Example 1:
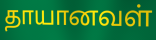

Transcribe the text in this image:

தாயானவள்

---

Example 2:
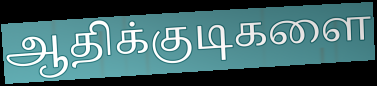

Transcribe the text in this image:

ஆதிக்குடிகளை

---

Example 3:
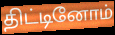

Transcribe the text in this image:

திட்டினோம்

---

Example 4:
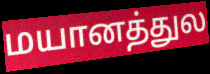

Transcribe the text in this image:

மயானத்துல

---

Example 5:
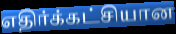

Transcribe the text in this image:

எதிர்க்கட்சியான